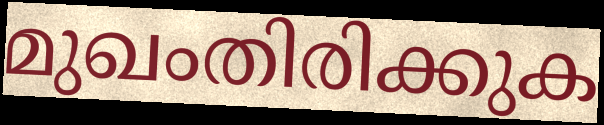
മുഖംതിരിക്കുക